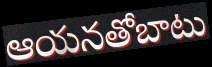
ఆయనతోబాటు